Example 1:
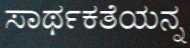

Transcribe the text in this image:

ಸಾರ್ಥಕತೆಯನ್ನ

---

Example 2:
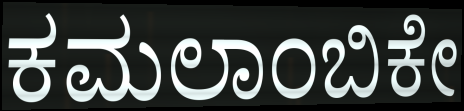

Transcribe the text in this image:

ಕಮಲಾಂಬಿಕೇ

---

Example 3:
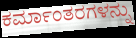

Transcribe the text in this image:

ಕರ್ಮಾಂತರಗಳನ್ನು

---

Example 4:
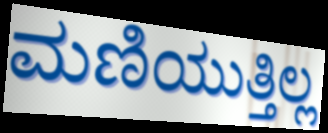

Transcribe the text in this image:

ಮಣಿಯುತ್ತಿಲ್ಲ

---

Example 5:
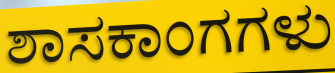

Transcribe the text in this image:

ಶಾಸಕಾಂಗಗಳು